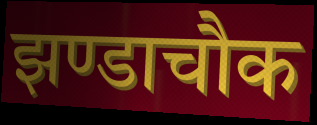
झण्डाचौक